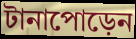
টানাপোড়েন